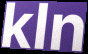
kln